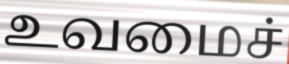
உவமைச்